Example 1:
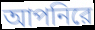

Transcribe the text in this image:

আপনিরে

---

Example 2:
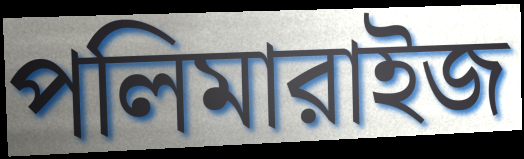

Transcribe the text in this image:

পলিমারাইজ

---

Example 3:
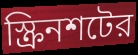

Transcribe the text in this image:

স্ক্রিনশটের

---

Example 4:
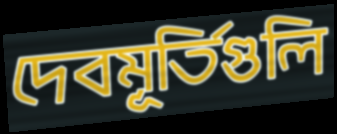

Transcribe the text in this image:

দেবমূর্তিগুলি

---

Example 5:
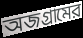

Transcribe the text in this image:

অজগ্রামের